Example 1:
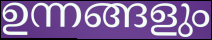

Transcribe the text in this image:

ഉന്നങ്ങളും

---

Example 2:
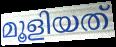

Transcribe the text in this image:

മൂളിയത്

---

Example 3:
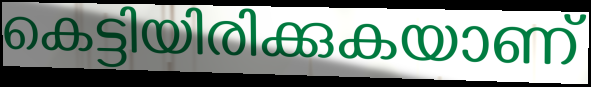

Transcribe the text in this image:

കെട്ടിയിരിക്കുകയാണ്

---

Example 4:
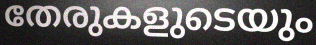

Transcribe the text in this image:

തേരുകളുടെയും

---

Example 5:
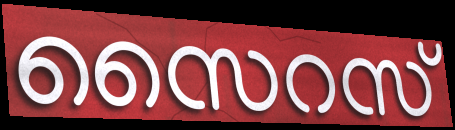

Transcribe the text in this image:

സൈറസ്